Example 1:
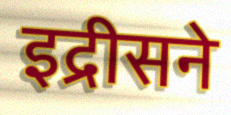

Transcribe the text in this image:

इद्रीसने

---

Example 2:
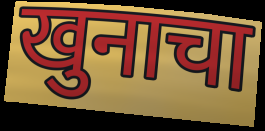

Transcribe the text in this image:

खुनाचा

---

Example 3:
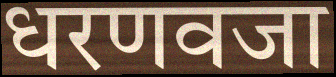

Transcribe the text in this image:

धरणवजा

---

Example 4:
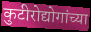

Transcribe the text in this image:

कुटीरोद्योगांच्या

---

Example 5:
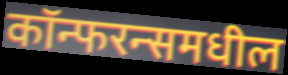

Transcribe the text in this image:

कॉन्फरन्समधील